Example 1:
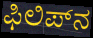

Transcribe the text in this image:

ಫಿಲಿಪ್‌ನ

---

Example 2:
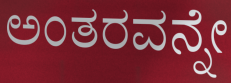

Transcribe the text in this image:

ಅಂತರವನ್ನೇ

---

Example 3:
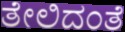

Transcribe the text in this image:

ತೇಲಿದಂತೆ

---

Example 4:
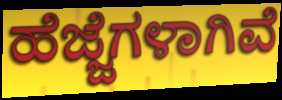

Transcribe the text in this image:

ಹೆಜ್ಜೆಗಳಾಗಿವೆ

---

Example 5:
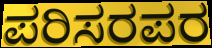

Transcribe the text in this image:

ಪರಿಸರಪರ